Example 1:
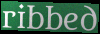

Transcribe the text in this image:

ribbed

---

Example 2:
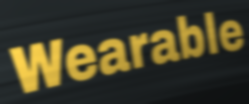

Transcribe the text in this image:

Wearable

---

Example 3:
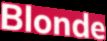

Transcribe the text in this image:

Blonde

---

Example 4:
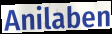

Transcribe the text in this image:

Anilaben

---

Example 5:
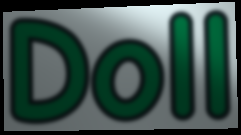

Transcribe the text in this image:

Doll